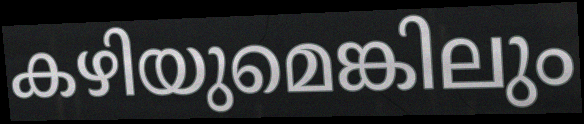
കഴിയുമെങ്കിലും